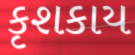
કૃશકાય